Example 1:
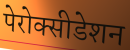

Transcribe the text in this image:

पेरोक्सीडेशन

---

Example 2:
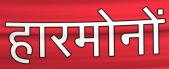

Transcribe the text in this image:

हारमोनों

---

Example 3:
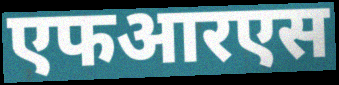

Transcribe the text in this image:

एफआरएस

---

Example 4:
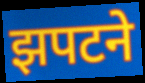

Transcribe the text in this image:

झपटने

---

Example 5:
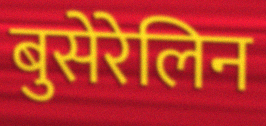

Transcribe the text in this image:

बुसेरेलिन